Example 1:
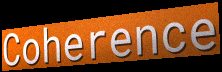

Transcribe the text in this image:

Coherence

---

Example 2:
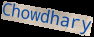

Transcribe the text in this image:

Chowdhary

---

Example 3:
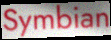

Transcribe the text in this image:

Symbian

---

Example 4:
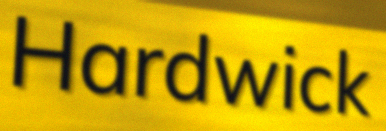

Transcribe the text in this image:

Hardwick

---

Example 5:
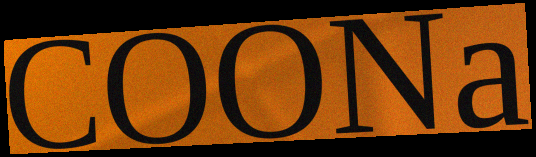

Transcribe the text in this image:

COONa